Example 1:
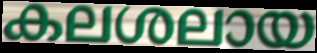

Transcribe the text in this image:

കലശലായ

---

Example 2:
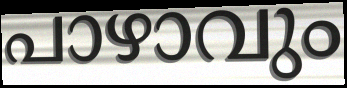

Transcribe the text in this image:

പാഴാവും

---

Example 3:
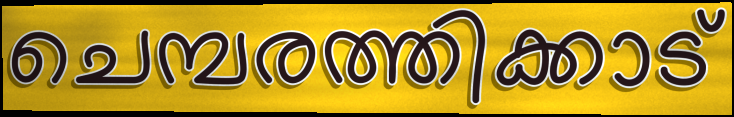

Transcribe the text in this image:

ചെമ്പരത്തിക്കാട്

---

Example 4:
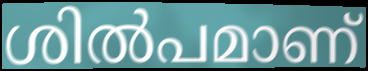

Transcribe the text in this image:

ശിൽപമാണ്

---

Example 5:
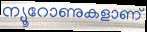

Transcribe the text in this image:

ന്യൂറോണുകളാണ്